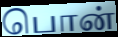
பொன்